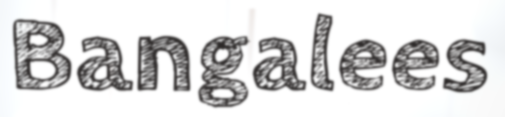
Bangalees